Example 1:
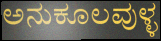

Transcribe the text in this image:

ಅನುಕೂಲವುಳ್ಳ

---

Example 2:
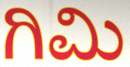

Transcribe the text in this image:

ಗಿಮಿ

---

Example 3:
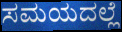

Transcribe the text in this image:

ಸಮಯದಲ್ಲೆ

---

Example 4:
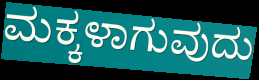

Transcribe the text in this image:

ಮಕ್ಕಳಾಗುವುದು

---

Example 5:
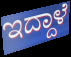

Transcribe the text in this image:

ಇದ್ದಾಳೆ